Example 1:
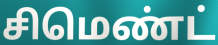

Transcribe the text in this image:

சிமெண்ட்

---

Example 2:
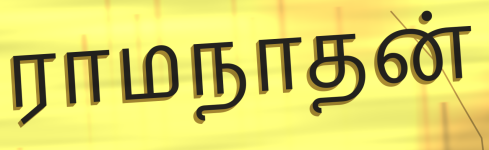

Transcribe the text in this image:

ராமநாதன்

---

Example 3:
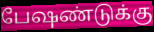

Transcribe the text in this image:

பேஷண்டுக்கு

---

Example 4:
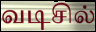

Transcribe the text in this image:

வடிசில்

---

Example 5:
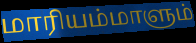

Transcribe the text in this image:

மாரியம்மாளும்